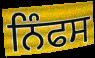
ਨਿੰਫਸ